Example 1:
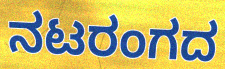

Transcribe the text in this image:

ನಟರಂಗದ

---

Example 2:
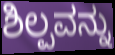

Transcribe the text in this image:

ಶಿಲ್ಪವನ್ನು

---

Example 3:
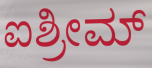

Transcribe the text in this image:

ಐಶ್ರೀಮ್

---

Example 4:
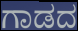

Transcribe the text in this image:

ಗಾಡದ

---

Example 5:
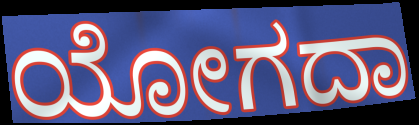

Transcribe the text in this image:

ಯೋಗದಾ